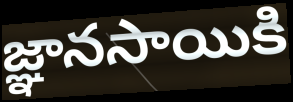
జ్ఞానసాయికి